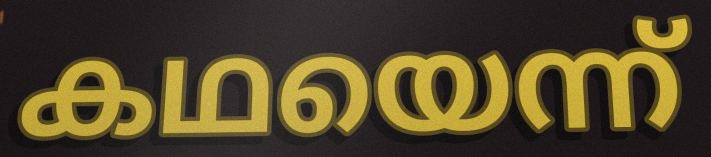
കഥയെന്ന്